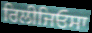
ਰਿਲੀਜਿਓਸਾ